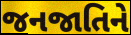
જનજાતિને